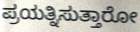
ಪ್ರಯತ್ನಿಸುತ್ತಾರೋ